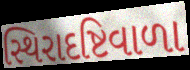
સ્થિરાદષ્ટિવાળા